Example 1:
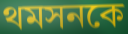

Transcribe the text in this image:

থমসনকে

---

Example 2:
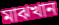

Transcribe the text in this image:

মাঝখান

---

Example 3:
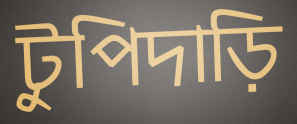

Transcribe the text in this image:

টুপিদাড়ি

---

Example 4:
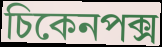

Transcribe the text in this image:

চিকেনপক্স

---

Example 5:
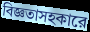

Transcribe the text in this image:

বিজ্ঞতাসহকারে